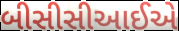
બીસીસીઆઈએ